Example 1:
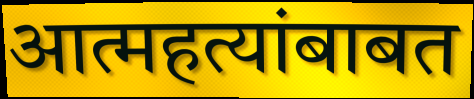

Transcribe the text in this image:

आत्महत्यांबाबत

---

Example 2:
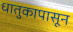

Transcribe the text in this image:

धातुकापासून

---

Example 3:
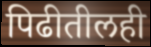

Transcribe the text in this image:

पिढीतीलही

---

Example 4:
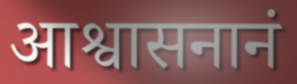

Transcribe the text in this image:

आश्वासनानं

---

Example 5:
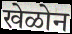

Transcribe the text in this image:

खेळोन